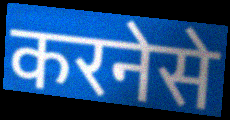
करनेसे